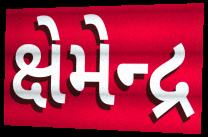
ક્ષેમેન્દ્ર